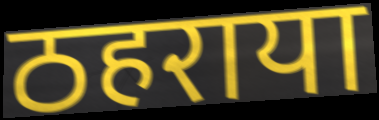
ठहराया